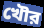
খৌর